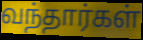
வந்தார்கள்